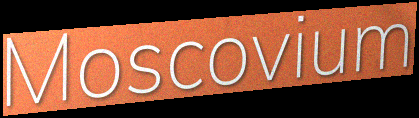
Moscovium